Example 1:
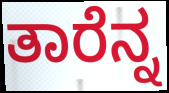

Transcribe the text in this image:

ತಾರೆನ್ನ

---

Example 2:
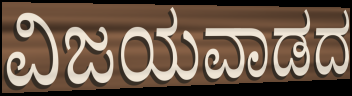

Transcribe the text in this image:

ವಿಜಯವಾಡದ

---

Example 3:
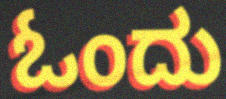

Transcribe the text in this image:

ಓಂದು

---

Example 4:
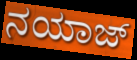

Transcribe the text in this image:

ನಯಾಜ್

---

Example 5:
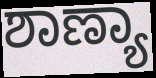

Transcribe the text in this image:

ಶಾಣ್ಯಾ